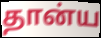
தான்ய